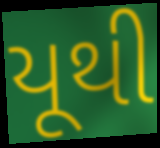
યૂથી